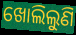
ଖୋଲିଲୁଣି